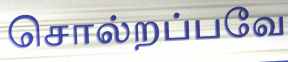
சொல்றப்பவே